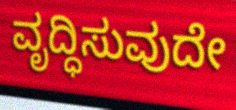
ವೃದ್ಧಿಸುವುದೇ